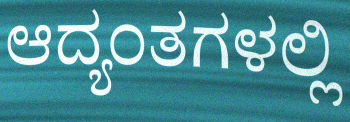
ಆದ್ಯಂತಗಳಲ್ಲಿ